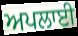
ਅਪਲਾਈ